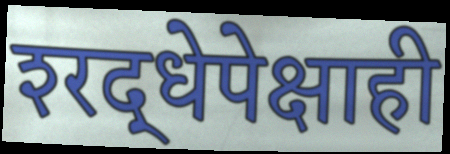
श्रद्धेपेक्षाही